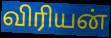
விரியன்